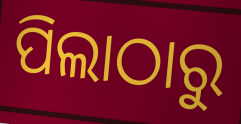
ପିଲାଠାରୁ